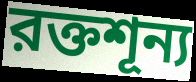
রক্তশূন্য